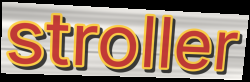
stroller